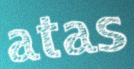
atas